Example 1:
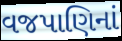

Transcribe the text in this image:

વજપાણિનાં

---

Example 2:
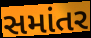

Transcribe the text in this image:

સમાંતર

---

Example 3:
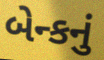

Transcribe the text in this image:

બેન્કનું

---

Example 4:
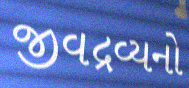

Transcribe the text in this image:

જીવદ્રવ્યનો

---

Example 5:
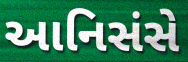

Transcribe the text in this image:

આનિસંસે